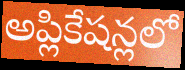
అప్లికేషన్లలో